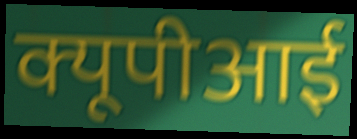
क्यूपीआई